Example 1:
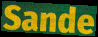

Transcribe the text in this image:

Sande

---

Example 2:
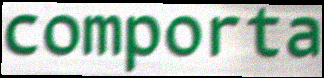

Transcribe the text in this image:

comporta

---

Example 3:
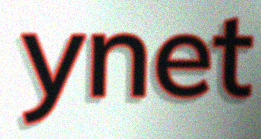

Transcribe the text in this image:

ynet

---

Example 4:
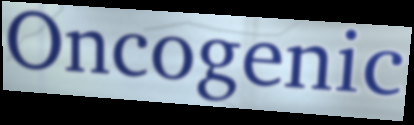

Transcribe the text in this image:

Oncogenic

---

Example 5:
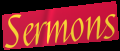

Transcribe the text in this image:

Sermons